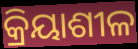
କ୍ରିୟାଶୀଳ